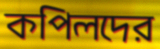
কপিলদের